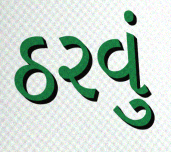
ઠરવું